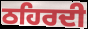
ਠਹਿਰਦੀ